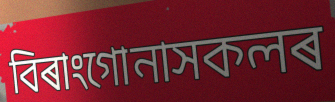
বিৰাংগোনাসকলৰ